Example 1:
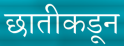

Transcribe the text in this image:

छातीकडून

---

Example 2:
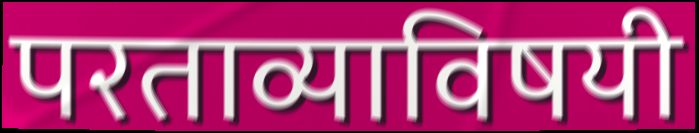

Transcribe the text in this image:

परताव्याविषयी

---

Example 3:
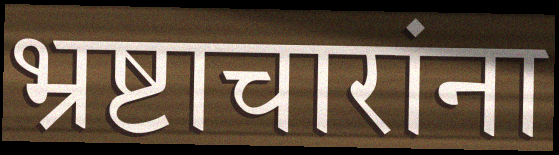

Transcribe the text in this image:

भ्रष्टाचारांना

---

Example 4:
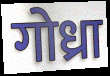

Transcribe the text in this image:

गोध्रा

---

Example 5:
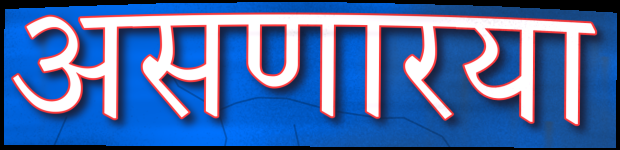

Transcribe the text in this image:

असणारया